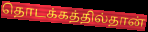
தொடக்கத்தில்தான்